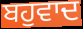
ਬਹੁਵਾਦ